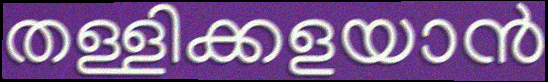
തള്ളിക്കളയാൻ